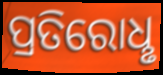
ପ୍ରତିରୋଧୢ